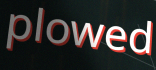
plowed